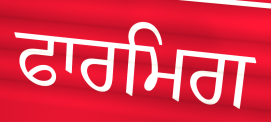
ਫਾਰਮਿਗ